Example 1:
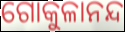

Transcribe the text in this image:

ଗୋକୁଳାନନ୍ଦ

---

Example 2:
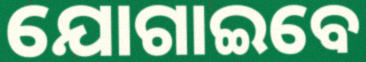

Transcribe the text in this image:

ଯୋଗାଇବେ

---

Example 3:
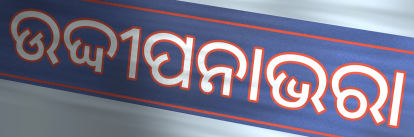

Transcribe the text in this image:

ଉଦ୍ଦୀପନାଭରା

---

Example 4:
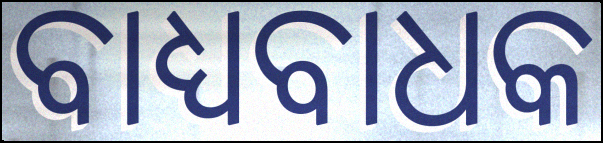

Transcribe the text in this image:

ବାଧ୍ୟବାଧକ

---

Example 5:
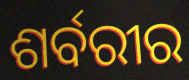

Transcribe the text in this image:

ଶର୍ବରୀର